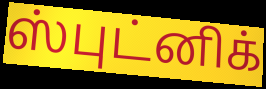
ஸ்புட்னிக்